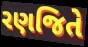
રણજિતે